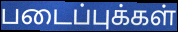
படைப்புக்கள்